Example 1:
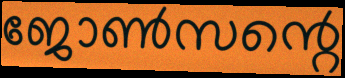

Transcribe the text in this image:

ജോൺസന്റെ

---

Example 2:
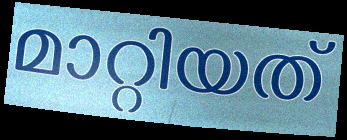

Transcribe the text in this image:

മാറ്റിയത്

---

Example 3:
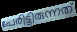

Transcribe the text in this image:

പേരിട്ടിരുന്നത്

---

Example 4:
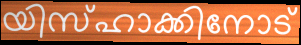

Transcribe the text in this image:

യിസ്ഹാക്കിനോട്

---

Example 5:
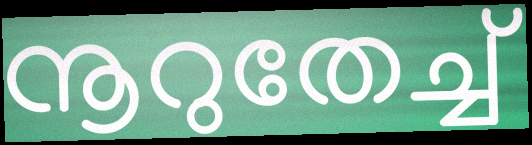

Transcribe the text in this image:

നൂറുതേച്ച്